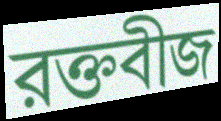
রক্তবীজ